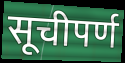
सूचीपर्ण